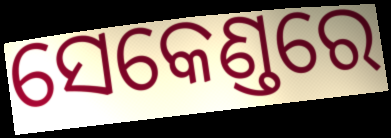
ସେକେଣ୍ଡରେ